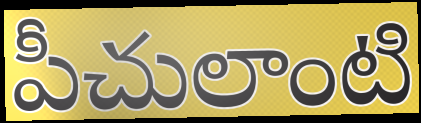
పీచులాంటి